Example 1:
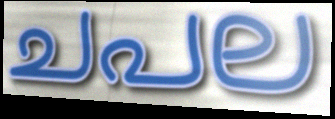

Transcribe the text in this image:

ചപല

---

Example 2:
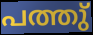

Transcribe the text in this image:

പത്തു്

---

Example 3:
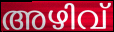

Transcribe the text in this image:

അഴിവ്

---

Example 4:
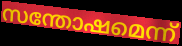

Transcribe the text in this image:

സന്തോഷമെന്ന്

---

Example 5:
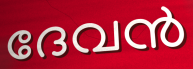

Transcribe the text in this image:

ദേവൻ